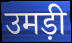
उमड़ी